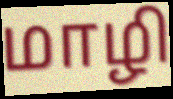
மாழி